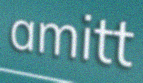
amitt